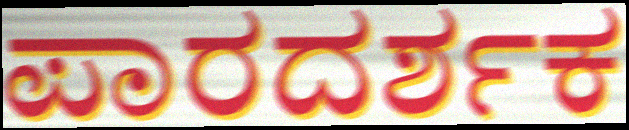
ಪಾರದರ್ಶಕ